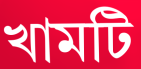
খামটি